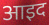
आइद